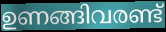
ഉണങ്ങിവരണ്ട്